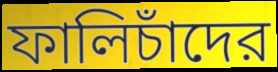
ফালিচাঁদের